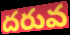
దరువ